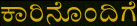
ಕಾರಿನೊಂದಿಗೆ